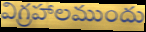
విగ్రహాలముందు